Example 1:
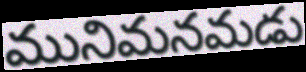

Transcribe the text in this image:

మునిమనమడు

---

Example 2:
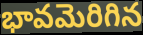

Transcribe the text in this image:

భావమెరిగిన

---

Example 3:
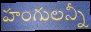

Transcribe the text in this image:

హంగులన్నీ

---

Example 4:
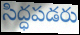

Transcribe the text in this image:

సిద్ధపడరు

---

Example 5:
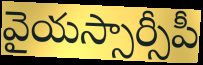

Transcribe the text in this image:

వైయస్సార్సీపీ